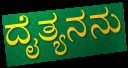
ದೈತ್ಯನನು